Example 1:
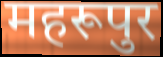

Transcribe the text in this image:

महरूपुर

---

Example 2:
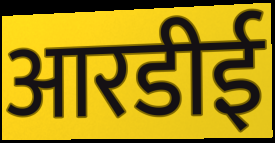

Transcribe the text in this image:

आरडीई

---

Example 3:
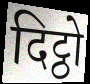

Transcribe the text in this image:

दिट्ठो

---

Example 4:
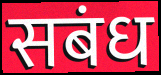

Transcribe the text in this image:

सबंध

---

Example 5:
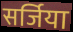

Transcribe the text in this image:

सर्जिया